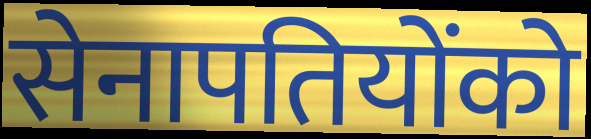
सेनापतियोंको